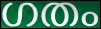
ഗതം